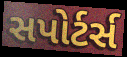
સપોર્ટર્સ